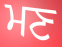
ਮਣ